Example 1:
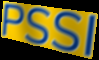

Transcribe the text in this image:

PSSI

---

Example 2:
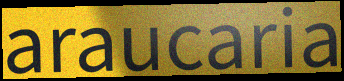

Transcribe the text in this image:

araucaria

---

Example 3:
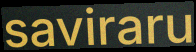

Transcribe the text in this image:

saviraru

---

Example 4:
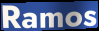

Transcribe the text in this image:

Ramos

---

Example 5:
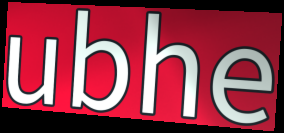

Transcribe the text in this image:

ubhe